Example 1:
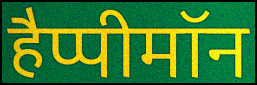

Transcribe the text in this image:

हैप्पीमॉन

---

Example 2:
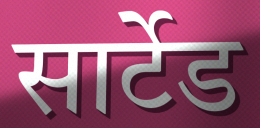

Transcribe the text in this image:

सार्टेड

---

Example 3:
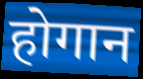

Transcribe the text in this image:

होगान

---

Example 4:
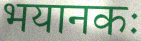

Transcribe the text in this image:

भयानकः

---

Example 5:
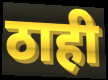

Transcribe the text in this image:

ठाही